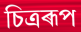
চিত্ৰৰূপ